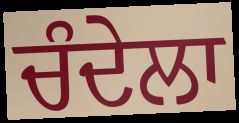
ਚੰਦੇਲਾ